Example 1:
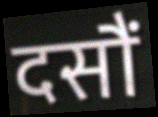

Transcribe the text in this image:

दसौं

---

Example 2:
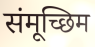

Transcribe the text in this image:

संमूच्छिम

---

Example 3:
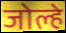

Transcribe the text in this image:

जोल्हे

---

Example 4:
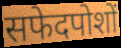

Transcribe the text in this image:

सफेदपोशों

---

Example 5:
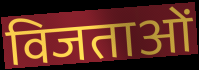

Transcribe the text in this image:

विजताओं